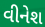
વીનેશ